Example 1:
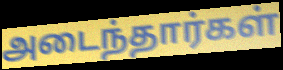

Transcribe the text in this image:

அடைந்தார்கள்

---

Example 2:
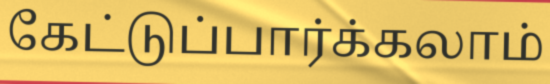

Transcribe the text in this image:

கேட்டுப்பார்க்கலாம்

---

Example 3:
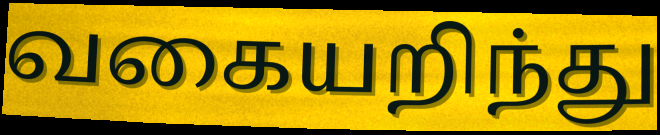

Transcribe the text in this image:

வகையறிந்து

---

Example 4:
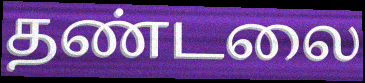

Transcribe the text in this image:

தண்டலை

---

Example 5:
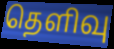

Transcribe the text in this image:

தெளிவு